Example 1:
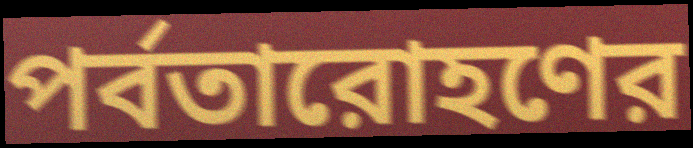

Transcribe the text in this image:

পর্বতারোহণের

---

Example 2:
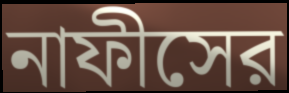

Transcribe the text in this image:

নাফীসের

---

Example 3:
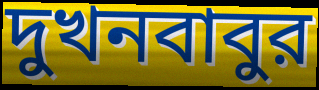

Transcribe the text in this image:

দুখনবাবুর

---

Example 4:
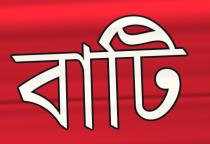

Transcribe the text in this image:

বাটি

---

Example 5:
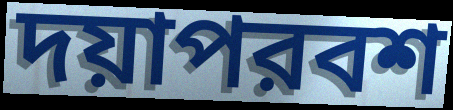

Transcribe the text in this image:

দয়াপরবশ